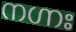
നഗ്നഃ